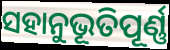
ସହାନୁଭୂତିପୂର୍ଣ୍ଣ